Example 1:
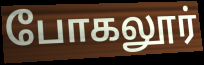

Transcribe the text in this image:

போகலூர்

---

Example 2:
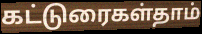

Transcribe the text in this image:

கட்டுரைகள்தாம்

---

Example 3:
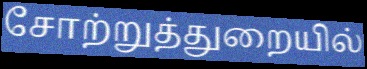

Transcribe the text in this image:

சோற்றுத்துறையில்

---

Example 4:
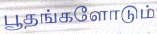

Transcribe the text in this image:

பூதங்களோடும்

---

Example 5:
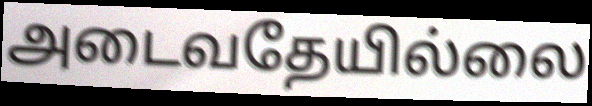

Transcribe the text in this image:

அடைவதேயில்லை